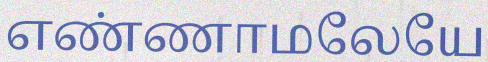
எண்ணாமலேயே